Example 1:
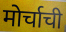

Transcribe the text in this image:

मोर्चाची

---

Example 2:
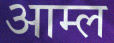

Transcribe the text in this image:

आम्‍ल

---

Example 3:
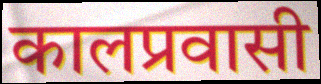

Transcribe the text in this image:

कालप्रवासी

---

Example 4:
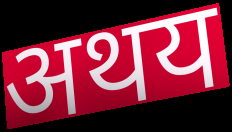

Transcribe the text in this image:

अथय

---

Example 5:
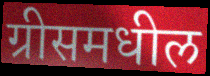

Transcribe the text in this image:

ग्रीसमधील